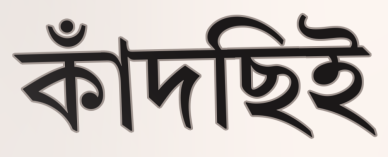
কাঁদছিই